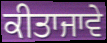
ਕੀਤਾਜਾਵੇ